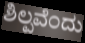
ಶಿಲ್ಪವೆಂದು